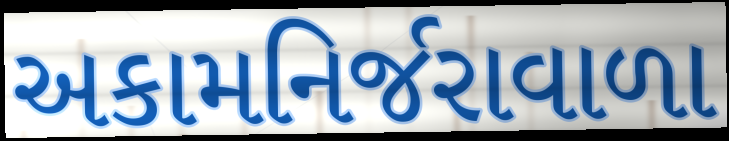
અકામનિર્જરાવાળા